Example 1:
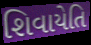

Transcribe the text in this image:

શિવાયેતિ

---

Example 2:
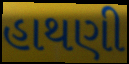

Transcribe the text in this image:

હાથણી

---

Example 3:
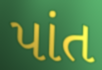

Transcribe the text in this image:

પાંત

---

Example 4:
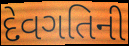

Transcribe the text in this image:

દેવગતિની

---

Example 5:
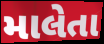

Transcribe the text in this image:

માલેતા